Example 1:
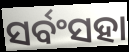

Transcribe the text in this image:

ସର୍ବଂସହା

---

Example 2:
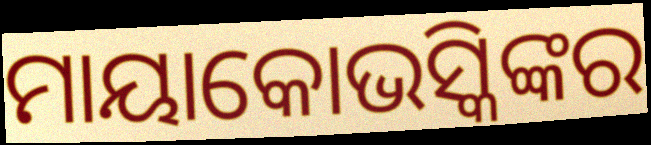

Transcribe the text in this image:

ମାୟାକୋଭସ୍କିଙ୍କର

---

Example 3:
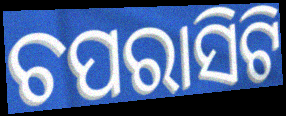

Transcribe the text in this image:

ଚପରାସିଟି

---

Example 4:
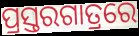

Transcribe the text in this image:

ପ୍ରସ୍ତରଗାତ୍ରରେ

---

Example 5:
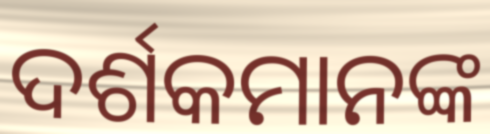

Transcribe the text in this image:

ଦର୍ଶକମାନଙ୍କ